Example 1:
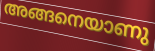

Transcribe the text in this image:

അങ്ങനെയാണു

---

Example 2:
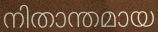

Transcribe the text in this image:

നിതാന്തമായ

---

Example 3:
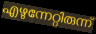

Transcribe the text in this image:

എഴുന്നേറ്റിരുന്ന്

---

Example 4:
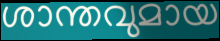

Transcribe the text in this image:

ശാന്തവുമായ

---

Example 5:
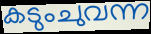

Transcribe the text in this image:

കടുംചുവന്ന